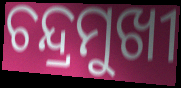
ଚନ୍ଦ୍ରମୁଖୀ